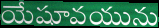
యేషూవయును